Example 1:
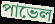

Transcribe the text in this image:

পাভেল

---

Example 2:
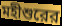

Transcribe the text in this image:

মহীশুরের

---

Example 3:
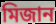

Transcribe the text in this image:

মিজান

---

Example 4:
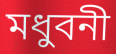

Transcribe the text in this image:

মধুবনী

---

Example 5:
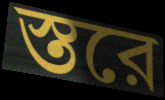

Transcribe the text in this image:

স্তরে